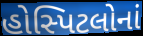
હોસ્પિટલોનાં